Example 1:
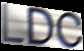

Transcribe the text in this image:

LDC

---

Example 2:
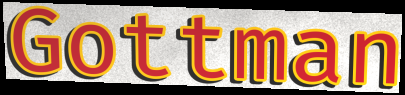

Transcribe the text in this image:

Gottman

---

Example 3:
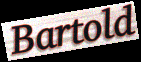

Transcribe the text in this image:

Bartold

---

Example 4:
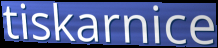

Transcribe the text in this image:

tiskarnice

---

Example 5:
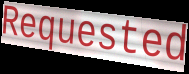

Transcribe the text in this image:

Requested